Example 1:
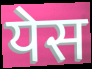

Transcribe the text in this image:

येस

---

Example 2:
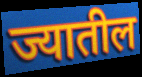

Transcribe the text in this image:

ज्यातील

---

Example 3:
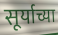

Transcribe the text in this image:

सूर्याच्या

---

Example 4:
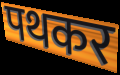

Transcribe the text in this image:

पथकर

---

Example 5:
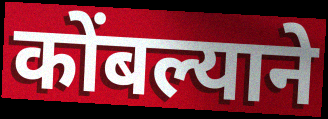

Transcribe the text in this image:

कोंबल्याने